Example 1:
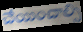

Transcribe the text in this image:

చేయించాల్సి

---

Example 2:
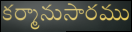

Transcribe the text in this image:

కర్మానుసారము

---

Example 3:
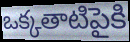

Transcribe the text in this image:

ఒక్కతాటిపైకి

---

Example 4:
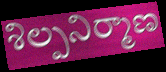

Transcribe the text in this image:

శిల్పనిర్మాణ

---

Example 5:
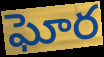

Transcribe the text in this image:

ఘోర